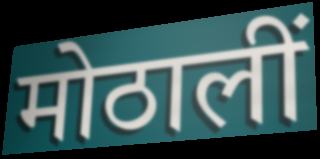
मोठालीं